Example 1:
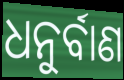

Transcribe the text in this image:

ଧନୁର୍ବାଣ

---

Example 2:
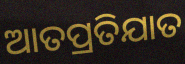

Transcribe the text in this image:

ଆତପ୍ରତିଯାତ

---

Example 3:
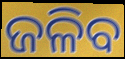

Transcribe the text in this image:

ଜଳିବ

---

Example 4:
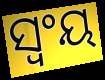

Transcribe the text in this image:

ସ୍ୱଂୟ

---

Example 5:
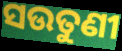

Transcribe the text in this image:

ସଉତୁଣୀ